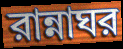
রান্নাঘর